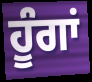
ਹੂੰਗਾਂ